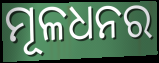
ମୂଳଧନର